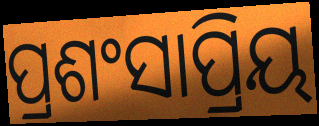
ପ୍ରଶଂସାପ୍ରିୟ